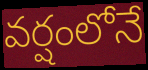
వర్షంలోనే